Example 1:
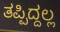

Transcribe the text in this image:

ತಪ್ಪಿದ್ದಲ್ಲ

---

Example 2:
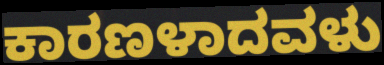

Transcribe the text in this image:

ಕಾರಣಳಾದವಳು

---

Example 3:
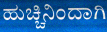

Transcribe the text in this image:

ಹುಚ್ಚಿನಿಂದಾಗಿ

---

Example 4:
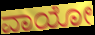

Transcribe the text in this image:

ವಾಯೋ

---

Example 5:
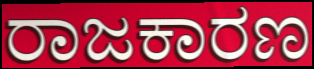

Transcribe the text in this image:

ರಾಜಕಾರಣ